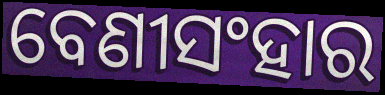
ବେଣୀସଂହାର